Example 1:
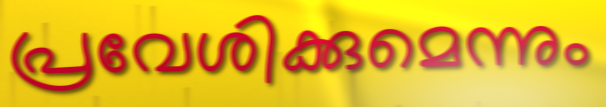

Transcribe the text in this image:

പ്രവേശിക്കുമെന്നും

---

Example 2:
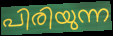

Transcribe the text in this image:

പിരിയുന്ന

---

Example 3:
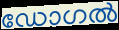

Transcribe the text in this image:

ഡോഗൽ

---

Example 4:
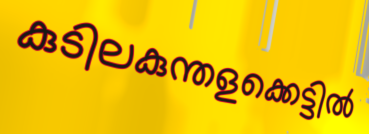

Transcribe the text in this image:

കുടിലകുന്തളക്കെട്ടിൽ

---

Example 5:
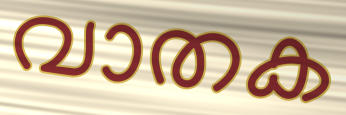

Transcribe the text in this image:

വാതക